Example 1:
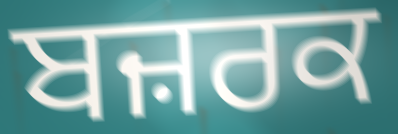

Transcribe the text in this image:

ਬਜ਼ਰਕ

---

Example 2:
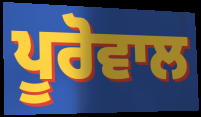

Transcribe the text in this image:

ਪੂਰੋਵਾਲ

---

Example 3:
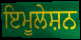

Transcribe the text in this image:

ਇਮੂਲੇਸ਼ਨ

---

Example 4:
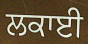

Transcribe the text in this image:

ਲਕਾਈ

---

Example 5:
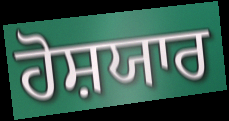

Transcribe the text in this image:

ਹੋਸ਼ਯਾਰ